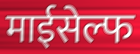
माईसेल्फ